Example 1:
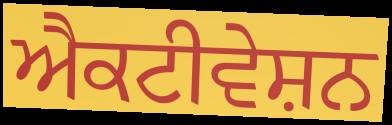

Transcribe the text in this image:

ਐਕਟੀਵੇਸ਼ਨ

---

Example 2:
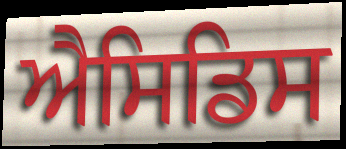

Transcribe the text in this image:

ਐਸਿਡਿਸ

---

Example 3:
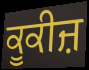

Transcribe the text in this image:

ਕੂਕੀਜ਼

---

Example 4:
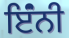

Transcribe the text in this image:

ਇੰਂਨੀ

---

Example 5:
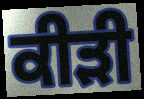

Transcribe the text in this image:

ਕੀੜੀ